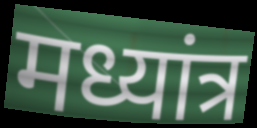
मध्यांत्र